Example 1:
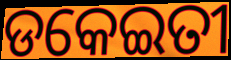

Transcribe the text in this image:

ଡକେଇତୀ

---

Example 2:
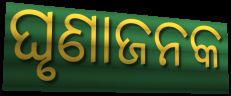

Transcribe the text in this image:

ଘୃଣାଜନକ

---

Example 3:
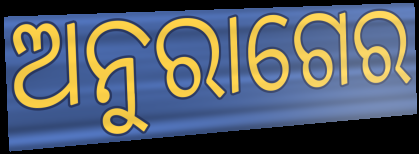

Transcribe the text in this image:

ଅନୁରାଗେର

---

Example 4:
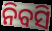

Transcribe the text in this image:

ନିବସି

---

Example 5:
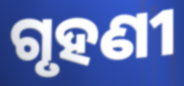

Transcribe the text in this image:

ଗୃହଣୀ